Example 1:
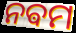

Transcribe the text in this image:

ନଵମ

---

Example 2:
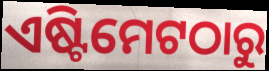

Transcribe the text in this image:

ଏଷ୍ଟିମେଟଠାରୁ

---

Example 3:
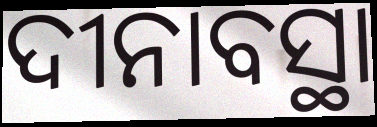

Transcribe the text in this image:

ଦୀନାବସ୍ଥା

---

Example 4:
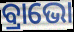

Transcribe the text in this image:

ବ୍ରାଭୋ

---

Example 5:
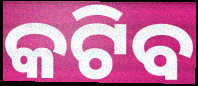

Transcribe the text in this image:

କଟିବ